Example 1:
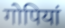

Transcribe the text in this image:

गोपियां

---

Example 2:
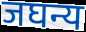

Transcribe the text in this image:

जघन्य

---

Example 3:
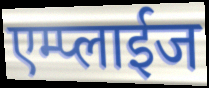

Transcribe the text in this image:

एम्प्लाईज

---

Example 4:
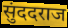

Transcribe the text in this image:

सुंददराज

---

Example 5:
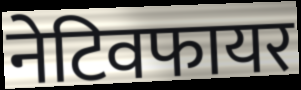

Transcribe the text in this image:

नेटिवफायर